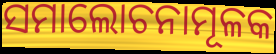
ସମାଲୋଚନାମୂଳକ